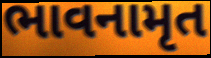
ભાવનામૃત